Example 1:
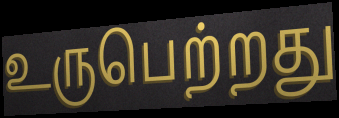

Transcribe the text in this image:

உருபெற்றது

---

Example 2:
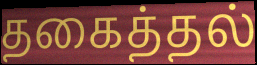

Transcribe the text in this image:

தகைத்தல்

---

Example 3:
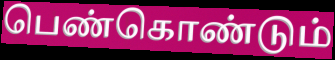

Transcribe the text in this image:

பெண்கொண்டும்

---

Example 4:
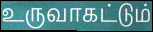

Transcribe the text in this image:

உருவாகட்டும்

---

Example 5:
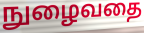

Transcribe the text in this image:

நுழைவதை